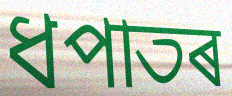
ধপাতৰ